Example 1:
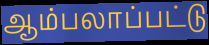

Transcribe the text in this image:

ஆம்பலாப்பட்டு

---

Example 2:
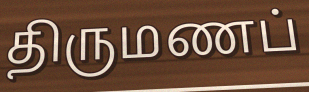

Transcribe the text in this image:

திருமணப்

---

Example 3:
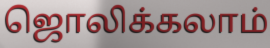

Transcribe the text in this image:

ஜொலிக்கலாம்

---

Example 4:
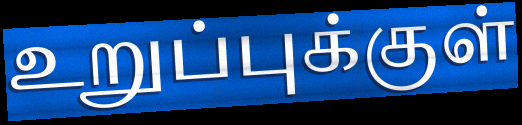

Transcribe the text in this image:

உறுப்புக்குள்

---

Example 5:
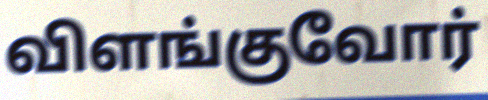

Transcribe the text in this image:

விளங்குவோர்